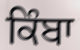
ਕਿੰਬਾ